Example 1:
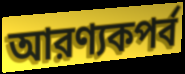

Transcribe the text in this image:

আরণ্যকপর্ব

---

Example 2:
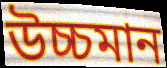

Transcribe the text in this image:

উচ্চমান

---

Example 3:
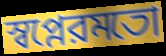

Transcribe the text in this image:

স্বপ্নেরমতো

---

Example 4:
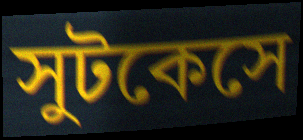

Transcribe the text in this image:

সুটকেসে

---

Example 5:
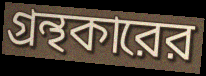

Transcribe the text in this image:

গ্রন্থকারের